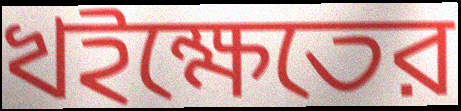
খইক্ষেতের